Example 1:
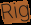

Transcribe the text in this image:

Rig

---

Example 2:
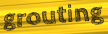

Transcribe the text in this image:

grouting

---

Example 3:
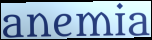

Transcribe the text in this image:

anemia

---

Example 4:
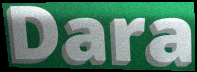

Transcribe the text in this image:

Dara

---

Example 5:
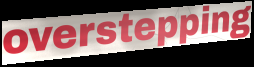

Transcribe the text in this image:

overstepping